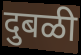
दुबळी